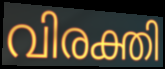
വിരക്തി